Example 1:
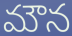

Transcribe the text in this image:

మౌన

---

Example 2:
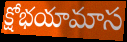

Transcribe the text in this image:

క్షోభయామాస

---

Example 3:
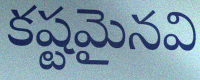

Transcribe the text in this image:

కష్టమైనవి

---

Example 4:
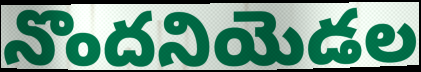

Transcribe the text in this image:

నొందనియెడల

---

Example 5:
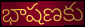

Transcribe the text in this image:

భాషణకు